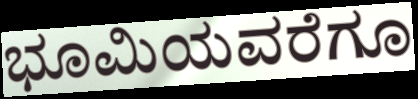
ಭೂಮಿಯವರೆಗೂ